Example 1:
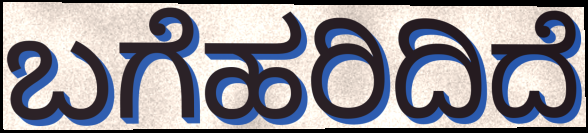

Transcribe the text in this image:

ಬಗೆಹರಿದಿದೆ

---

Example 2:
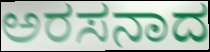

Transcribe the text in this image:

ಅರಸನಾದ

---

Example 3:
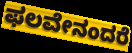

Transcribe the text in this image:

ಫಲವೇನಂದರೆ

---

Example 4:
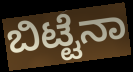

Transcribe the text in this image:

ಬಿಟ್ಟೆನಾ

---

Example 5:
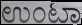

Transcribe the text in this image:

ಉಂಟಾ